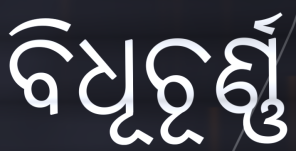
ବିଧୂଚୂର୍ଣ୍ଣ